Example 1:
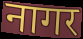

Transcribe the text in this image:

नागर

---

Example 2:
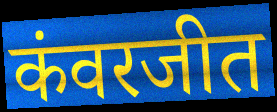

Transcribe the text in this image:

कंवरजीत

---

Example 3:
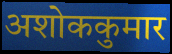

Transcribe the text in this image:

अशोककुमार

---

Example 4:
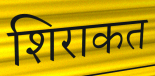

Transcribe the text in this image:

शिराकत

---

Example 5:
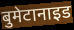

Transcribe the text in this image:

बुमेटानाइड